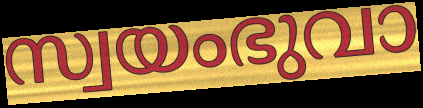
സ്വയംഭുവാ